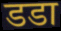
डडा